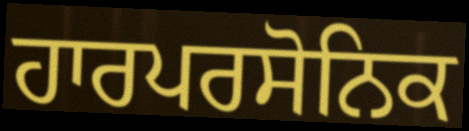
ਹਾਰਪਰਸੋਨਿਕ